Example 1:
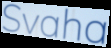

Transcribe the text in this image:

Svaha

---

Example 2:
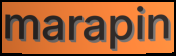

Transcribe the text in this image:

marapin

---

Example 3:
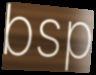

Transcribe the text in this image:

bsp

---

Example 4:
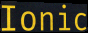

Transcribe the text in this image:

Ionic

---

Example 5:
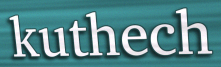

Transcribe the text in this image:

kuthech